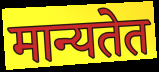
मान्यतेत